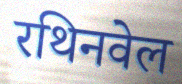
रथिनवेल